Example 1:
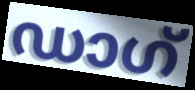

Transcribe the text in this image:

ഡാഗ്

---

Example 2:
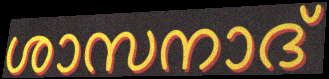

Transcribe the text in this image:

ശാസനാദ്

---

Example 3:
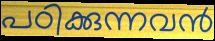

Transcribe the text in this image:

പഠിക്കുന്നവൻ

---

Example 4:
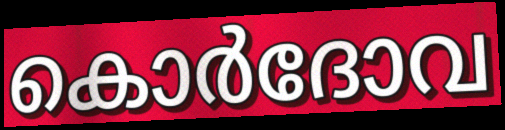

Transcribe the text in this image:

കൊർദോവ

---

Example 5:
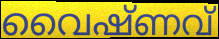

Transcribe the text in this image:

വൈഷ്ണവ്